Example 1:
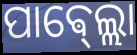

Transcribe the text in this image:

ପାଵ୍ଲ୍ଲୋ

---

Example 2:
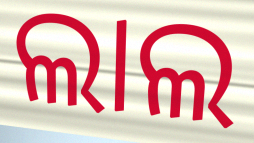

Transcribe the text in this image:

ଲାଲ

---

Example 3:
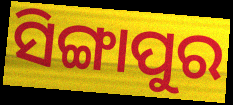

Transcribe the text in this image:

ସିଙ୍ଗାପୁର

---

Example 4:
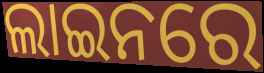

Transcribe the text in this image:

ଲାଇନରେ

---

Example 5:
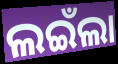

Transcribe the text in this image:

ଲଇଁଲା